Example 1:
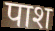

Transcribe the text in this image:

पाश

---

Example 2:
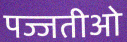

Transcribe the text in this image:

पज्जतीओ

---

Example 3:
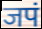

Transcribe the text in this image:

जपं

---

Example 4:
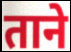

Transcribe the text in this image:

ताने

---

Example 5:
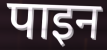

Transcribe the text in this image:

पाइन